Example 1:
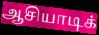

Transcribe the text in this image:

ஆசியாடிக்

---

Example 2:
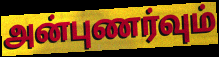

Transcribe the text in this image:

அன்புணர்வும்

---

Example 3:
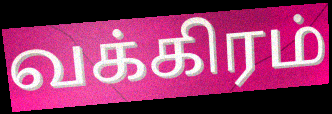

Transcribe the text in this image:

வக்கிரம்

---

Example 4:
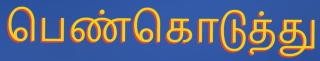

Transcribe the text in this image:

பெண்கொடுத்து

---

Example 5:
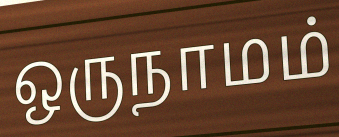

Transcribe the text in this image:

ஒருநாமம்